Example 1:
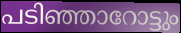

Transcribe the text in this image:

പടിഞ്ഞാറോട്ടും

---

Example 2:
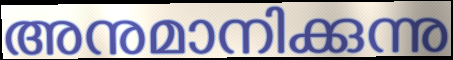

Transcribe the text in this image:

അനുമാനിക്കുന്നു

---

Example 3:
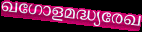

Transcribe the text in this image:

ഖഗോളമദ്ധ്യരേഖ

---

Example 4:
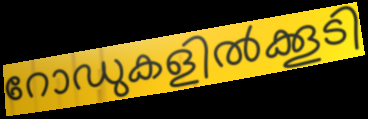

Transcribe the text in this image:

റോഡുകളിൽക്കൂടി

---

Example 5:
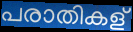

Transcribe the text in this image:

പരാതികള്